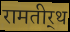
रामतीर्थ